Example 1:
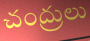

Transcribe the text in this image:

చంద్రులు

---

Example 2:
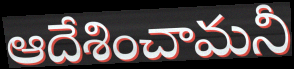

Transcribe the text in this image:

ఆదేశించామనీ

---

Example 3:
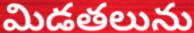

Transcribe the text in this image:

మిడతలును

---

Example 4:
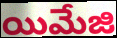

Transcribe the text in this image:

యిమేజి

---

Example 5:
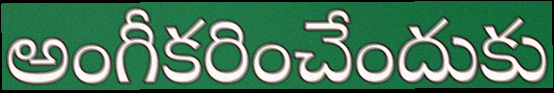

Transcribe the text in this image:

అంగీకరించేందుకు